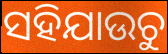
ସହିଯାଉଚୁ